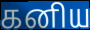
கனிய